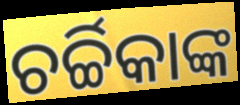
ଚର୍ଚ୍ଚିକାଙ୍କ